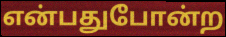
என்பதுபோன்ற